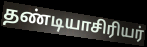
தண்டியாசிரியர்